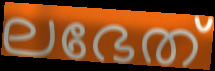
ലഭേത്